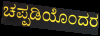
ಚಪ್ಪಡಿಯೊಂದರ